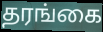
தரங்கை